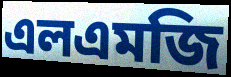
এলএমজি